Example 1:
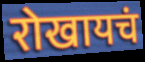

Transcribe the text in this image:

रोखायचं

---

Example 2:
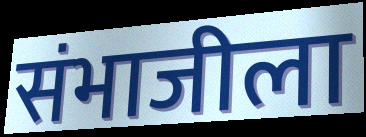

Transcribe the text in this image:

संभाजीला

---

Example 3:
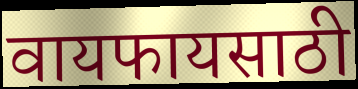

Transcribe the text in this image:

वायफायसाठी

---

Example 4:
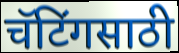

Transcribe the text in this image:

चॅटिंगसाठी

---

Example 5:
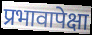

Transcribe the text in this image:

प्रभावापेक्षा